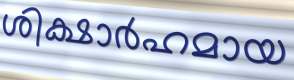
ശിക്ഷാർഹമായ